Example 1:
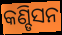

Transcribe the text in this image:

କଣ୍ଡିସନ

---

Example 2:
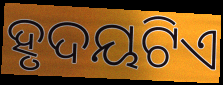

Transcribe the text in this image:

ହୃଦୟଟିଏ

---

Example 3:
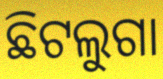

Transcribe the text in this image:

ଛିଟଲୁଗା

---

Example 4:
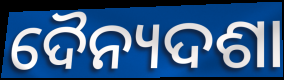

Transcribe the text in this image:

ଦୈନ୍ୟଦଶା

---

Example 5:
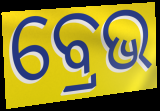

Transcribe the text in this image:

ବ୍ରେଭ